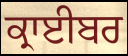
ਕ੍ਰਾਈਬਰ